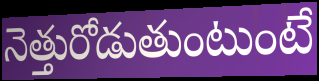
నెత్తురోడుతుంటుంటే